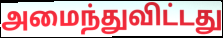
அமைந்துவிட்டது